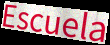
Escuela